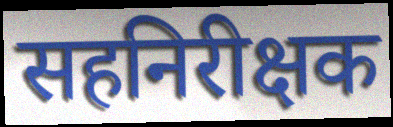
सहनिरीक्षक